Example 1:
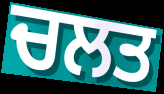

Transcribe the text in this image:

ਚਲਤ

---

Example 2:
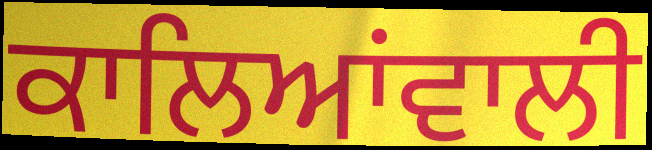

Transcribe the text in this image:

ਕਾਲਿਆਂਵਾਲੀ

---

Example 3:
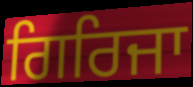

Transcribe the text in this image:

ਗਿਰਿਜਾ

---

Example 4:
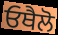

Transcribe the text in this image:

ਓਥੈਲੋ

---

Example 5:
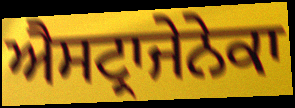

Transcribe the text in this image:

ਐਸਟ੍ਰਾਜੇਨੇਕਾ